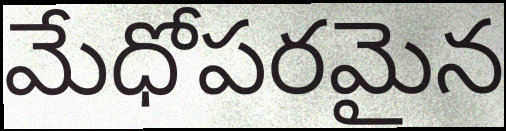
మేధోపరమైన